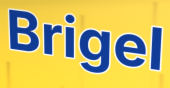
Brigel